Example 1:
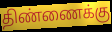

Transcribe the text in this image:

திண்ணைக்கு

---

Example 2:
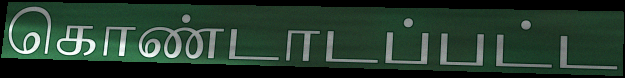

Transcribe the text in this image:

கொண்டாடப்பட்ட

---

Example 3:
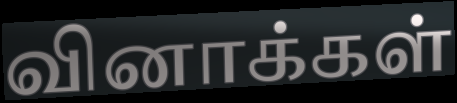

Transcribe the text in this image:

வினாக்கள்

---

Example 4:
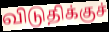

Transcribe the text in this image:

விடுதிக்குச்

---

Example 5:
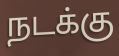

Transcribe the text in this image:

நடக்கு